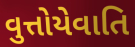
વુત્તોયેવાતિ